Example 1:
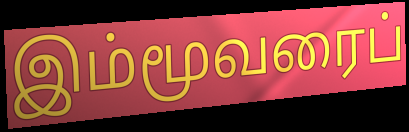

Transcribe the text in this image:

இம்மூவரைப்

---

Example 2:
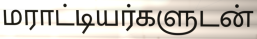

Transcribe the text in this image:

மராட்டியர்களுடன்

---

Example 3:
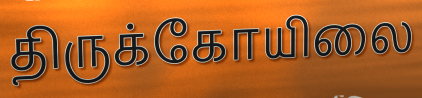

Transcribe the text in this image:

திருக்கோயிலை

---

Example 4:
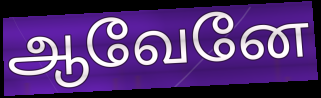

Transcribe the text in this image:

ஆவேனே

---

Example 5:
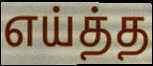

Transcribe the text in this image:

எய்த்த